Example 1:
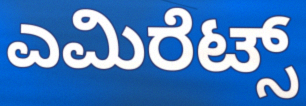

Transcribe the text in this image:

ಎಮಿರೆಟ್ಸ್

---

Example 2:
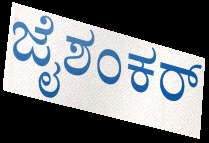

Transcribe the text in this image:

ಜೈಶಂಕರ್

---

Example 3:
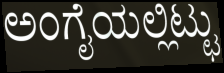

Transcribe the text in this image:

ಅಂಗೈಯಲ್ಲಿಟ್ಟು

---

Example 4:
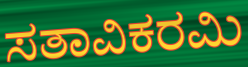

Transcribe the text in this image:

ಸತಾವಿಕರಮಿ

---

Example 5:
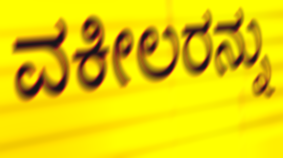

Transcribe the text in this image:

ವಕೀಲರನ್ನು